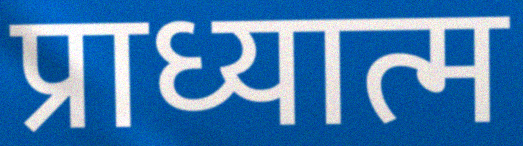
प्राध्यात्म